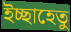
ইচ্ছাহেতু